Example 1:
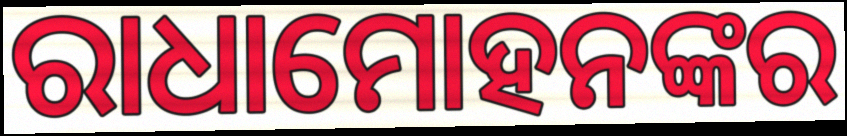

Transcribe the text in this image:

ରାଧାମୋହନଙ୍କର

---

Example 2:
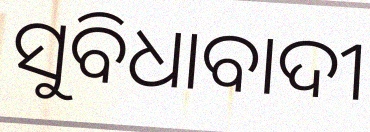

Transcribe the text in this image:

ସୁବିଧାବାଦୀ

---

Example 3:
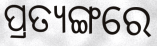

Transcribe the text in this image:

ପ୍ରତ୍ୟଙ୍ଗରେ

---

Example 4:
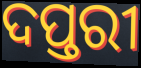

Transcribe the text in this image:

ଦପ୍ତରୀ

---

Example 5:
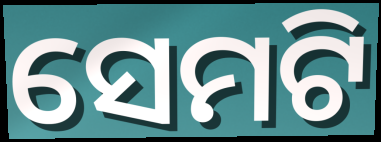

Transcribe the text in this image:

ସେମଟି